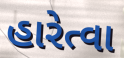
હારેત્વા